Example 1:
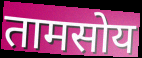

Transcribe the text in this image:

तामसोय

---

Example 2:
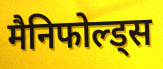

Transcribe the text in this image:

मैनिफोल्ड्स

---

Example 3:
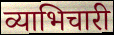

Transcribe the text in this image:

व्याभिचारी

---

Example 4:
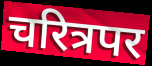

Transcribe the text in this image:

चरित्रपर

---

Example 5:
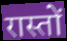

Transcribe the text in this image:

रास्तों